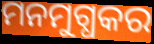
ମନମୁଗ୍ଧକର